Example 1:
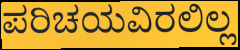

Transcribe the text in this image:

ಪರಿಚಯವಿರಲಿಲ್ಲ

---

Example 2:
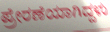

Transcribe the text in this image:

ಪ್ರೇರಣೆಯಾಗಿದ್ದಳು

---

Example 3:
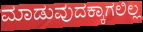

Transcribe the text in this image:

ಮಾಡುವುದಕ್ಕಾಗಲಿಲ್ಲ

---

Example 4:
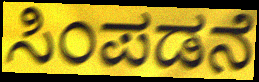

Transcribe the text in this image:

ಸಿಂಪಡನೆ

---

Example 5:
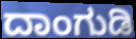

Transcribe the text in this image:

ದಾಂಗುಡಿ